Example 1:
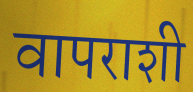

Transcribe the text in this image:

वापराशी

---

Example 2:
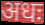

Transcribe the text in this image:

अधः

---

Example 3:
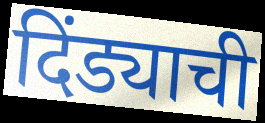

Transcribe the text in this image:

दिंड्याची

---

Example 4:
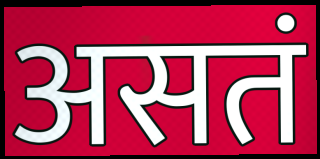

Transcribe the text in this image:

असतं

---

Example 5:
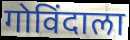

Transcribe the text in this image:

गोविंदाला